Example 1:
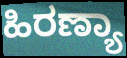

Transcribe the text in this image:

ಹಿರಣ್ಯಾ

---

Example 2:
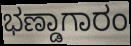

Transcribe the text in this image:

ಭಣ್ಡಾಗಾರಂ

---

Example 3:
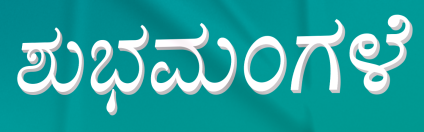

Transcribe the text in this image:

ಶುಭಮಂಗಳೆ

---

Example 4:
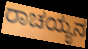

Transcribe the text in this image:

ರಾಚಯ್ಯನ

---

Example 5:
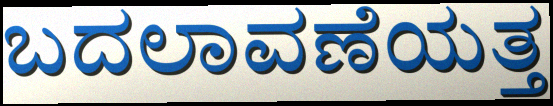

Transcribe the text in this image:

ಬದಲಾವಣೆಯತ್ತ